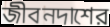
জীবনদাশের